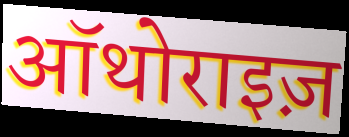
ऑथोराइज़